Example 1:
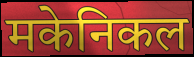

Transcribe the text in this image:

मकेनिकल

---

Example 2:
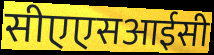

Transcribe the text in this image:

सीएएसआईसी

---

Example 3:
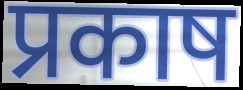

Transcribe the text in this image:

प्रकाष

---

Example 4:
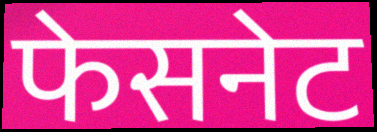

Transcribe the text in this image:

फेसनेट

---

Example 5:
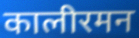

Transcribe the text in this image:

कालीरमन